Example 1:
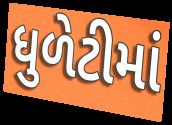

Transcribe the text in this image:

ધુળેટીમાં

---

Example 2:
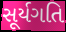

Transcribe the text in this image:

સૂર્યગતિ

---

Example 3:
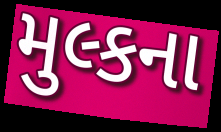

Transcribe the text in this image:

મુલ્કના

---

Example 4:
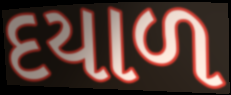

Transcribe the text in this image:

દયાળ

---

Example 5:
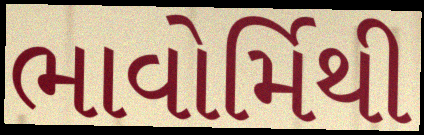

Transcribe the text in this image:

ભાવોર્મિથી